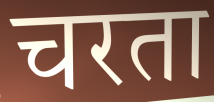
चरता